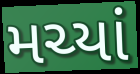
મચ્યાં